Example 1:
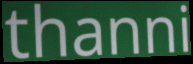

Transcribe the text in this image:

thanni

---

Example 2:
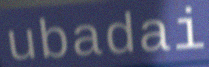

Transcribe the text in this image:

ubadai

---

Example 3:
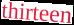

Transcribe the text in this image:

thirteen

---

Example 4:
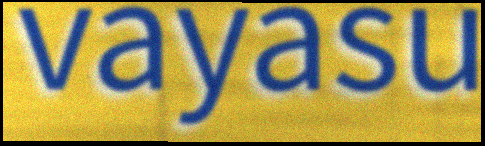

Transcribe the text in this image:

vayasu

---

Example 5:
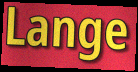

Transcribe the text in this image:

Lange